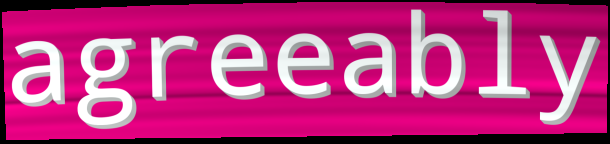
agreeably